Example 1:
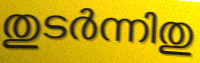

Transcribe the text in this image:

തുടർന്നിതു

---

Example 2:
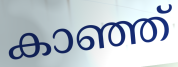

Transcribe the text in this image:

കാഞ്ഞ്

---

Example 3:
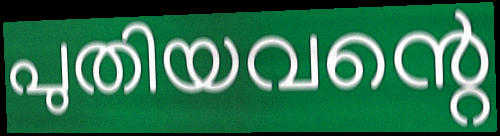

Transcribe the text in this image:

പുതിയവന്റെ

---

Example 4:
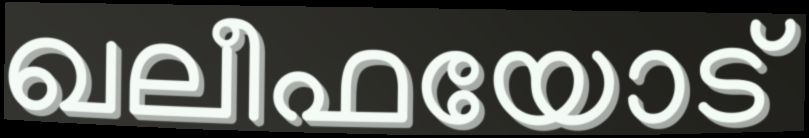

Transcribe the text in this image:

ഖലീഫയോട്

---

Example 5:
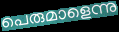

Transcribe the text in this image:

പെരുമാളെന്നു